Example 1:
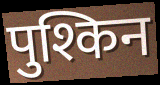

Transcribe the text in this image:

पुश्किन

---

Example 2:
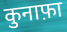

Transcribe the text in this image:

कुनाफ़ा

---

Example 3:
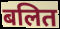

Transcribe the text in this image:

बलित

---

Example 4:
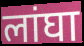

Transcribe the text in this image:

लांघा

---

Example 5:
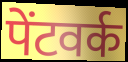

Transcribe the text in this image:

पेंटवर्क